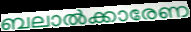
ബലാൽക്കാരേണ